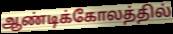
ஆண்டிக்கோலத்தில்